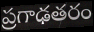
ప్రగాఢతరం